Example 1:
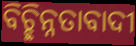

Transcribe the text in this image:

ବିଚ୍ଛିନ୍ନତାବାଦୀ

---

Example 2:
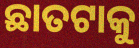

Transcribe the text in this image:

ଛାତଟାକୁ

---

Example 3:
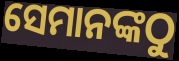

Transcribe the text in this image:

ସେମାନଙ୍କଠୁ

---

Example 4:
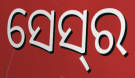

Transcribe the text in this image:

ସେସ୍‌ର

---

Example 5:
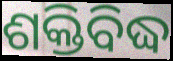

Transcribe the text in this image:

ଶକ୍ତିବିଦ୍ଧ